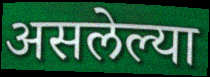
असलेल्या